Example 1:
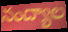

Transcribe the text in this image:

నంద్యాల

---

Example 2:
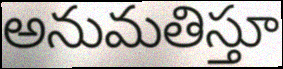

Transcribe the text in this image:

అనుమతిస్తూ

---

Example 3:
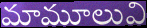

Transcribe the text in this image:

మామూలువి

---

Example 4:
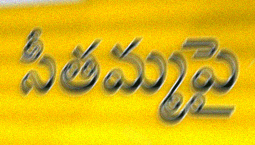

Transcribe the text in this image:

సీతమ్మపై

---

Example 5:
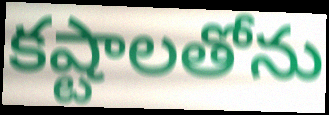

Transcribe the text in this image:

కష్టాలతోను